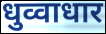
धुव्वाधार